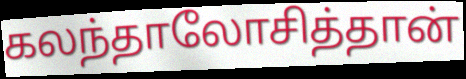
கலந்தாலோசித்தான்